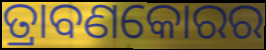
ତ୍ରାବଣକୋରର